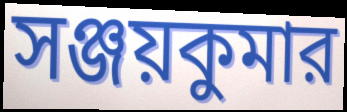
সঞ্জয়কুমার